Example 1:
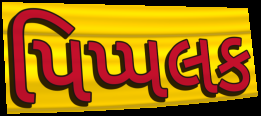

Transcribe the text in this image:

પિપ્પલક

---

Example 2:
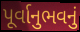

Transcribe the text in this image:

પૂર્વાનુભવનું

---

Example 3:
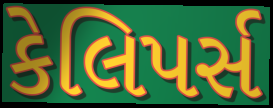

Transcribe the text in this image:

કેલિપર્સ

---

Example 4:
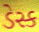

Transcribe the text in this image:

ડેસ્ક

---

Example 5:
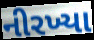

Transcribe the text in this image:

નીરખ્યા